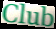
Club